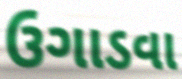
ઉગાડવા